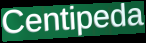
Centipeda